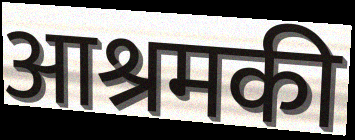
आश्रमकी